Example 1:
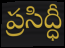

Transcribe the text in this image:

ప్రసిద్ధీ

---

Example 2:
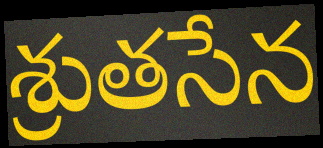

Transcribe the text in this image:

శ్రుతసేన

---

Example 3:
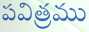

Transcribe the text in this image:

పవిత్రము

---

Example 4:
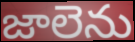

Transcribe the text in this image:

జాలెను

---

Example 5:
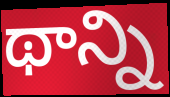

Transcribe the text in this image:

థాన్ని